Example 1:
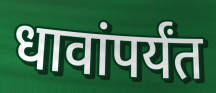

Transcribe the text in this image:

धावांपर्यंत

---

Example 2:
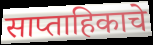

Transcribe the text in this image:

साप्ताहिकाचे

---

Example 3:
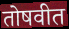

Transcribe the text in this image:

तोषवीत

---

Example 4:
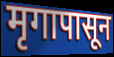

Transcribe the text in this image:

मृगापासून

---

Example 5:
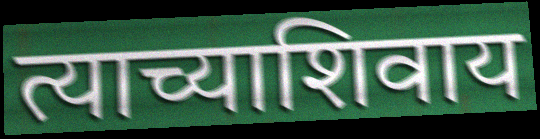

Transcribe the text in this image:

त्याच्याशिवाय